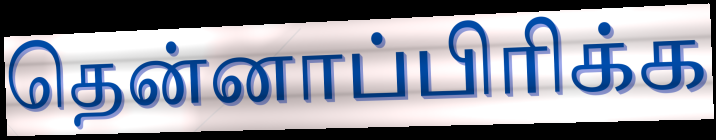
தென்னாப்பிரிக்க